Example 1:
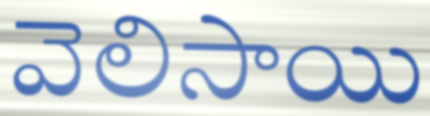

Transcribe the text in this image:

వెలిసాయి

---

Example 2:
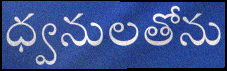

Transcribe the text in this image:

ధ్వనులతోను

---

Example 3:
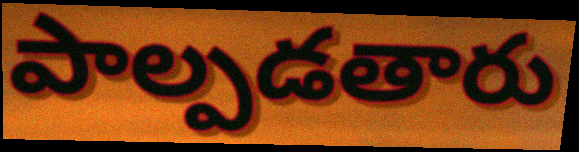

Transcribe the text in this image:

పాల్పడతారు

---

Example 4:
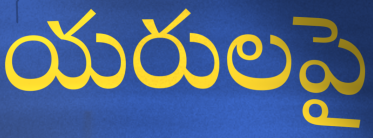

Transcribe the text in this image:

యరులపై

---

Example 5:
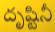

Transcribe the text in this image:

దృష్టినీ